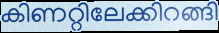
കിണറ്റിലേക്കിറങ്ങി